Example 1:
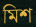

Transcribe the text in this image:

মিশ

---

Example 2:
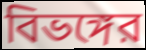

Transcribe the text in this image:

বিভঙ্গের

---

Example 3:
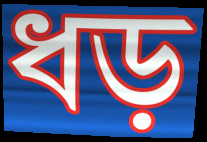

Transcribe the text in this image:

ধড়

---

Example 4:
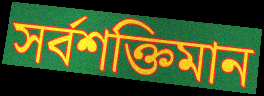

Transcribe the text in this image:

সর্বশক্তিমান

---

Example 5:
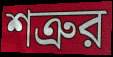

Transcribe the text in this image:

শত্রুর